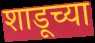
शाडूच्या